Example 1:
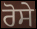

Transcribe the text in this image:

ਰੋਸੇ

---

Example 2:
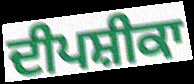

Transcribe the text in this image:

ਦੀਪਸ਼ੀਕਾ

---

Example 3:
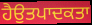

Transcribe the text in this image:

ਹੈਉਤਪਾਦਕਤਾ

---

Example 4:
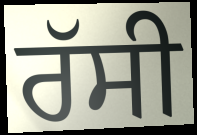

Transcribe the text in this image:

ਰੱਸੀ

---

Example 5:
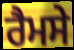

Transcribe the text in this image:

ਰੈਮਸੇ